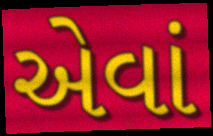
એવાં